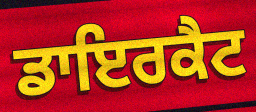
ਡਾਇਰਕੈਟ